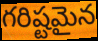
గరిష్టమైన